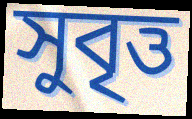
সুবৃত্ত